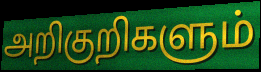
அறிகுறிகளும்